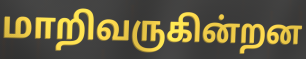
மாறிவருகின்றன